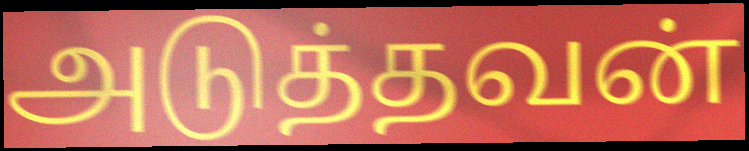
அடுத்தவன்